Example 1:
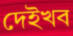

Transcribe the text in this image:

দেইখব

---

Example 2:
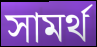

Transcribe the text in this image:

সামর্থ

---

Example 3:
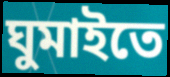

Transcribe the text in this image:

ঘুমাইতে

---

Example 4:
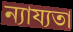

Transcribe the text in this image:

ন্যায্যতা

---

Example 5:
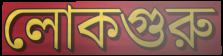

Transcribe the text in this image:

লোকগুরু